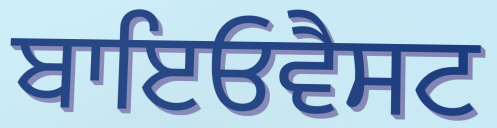
ਬਾਇਓਵੈਸਟ